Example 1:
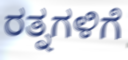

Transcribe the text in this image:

ರತ್ನಗಳಿಗೆ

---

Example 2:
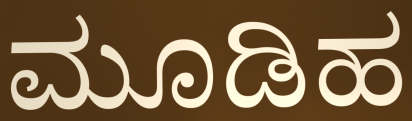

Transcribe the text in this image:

ಮೂಡಿಹ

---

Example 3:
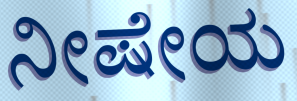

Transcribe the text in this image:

ನೀಷೇಯ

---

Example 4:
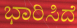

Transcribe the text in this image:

ಭಾರಿಸಿದೆ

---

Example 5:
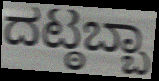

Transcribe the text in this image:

ದಟ್ಠಬ್ಬಾ